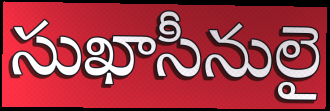
సుఖాసీనులై